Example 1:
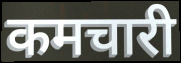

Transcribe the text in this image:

कमचारी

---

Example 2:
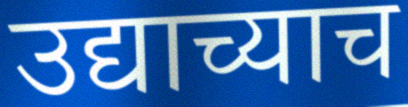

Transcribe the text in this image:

उद्याच्याच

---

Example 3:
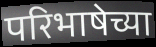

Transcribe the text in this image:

परिभाषेच्या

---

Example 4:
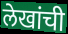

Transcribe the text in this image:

लेखांची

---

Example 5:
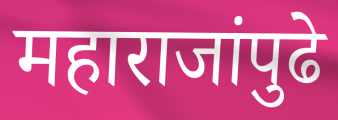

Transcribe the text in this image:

महाराजांपुढे